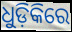
ଧୁଡ଼ିକିରେ